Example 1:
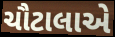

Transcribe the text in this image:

ચૌટાલાએ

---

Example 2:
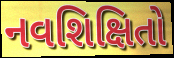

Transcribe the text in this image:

નવશિક્ષિતો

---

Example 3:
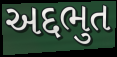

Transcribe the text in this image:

અદ્દભુત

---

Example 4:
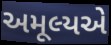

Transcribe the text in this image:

અમૂલ્યએ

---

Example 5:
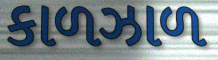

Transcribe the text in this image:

કાળઝાળ